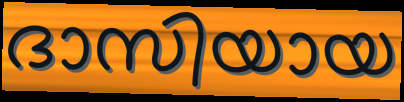
ദാസിയായ